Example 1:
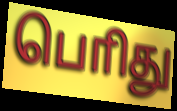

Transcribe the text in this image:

பெரிது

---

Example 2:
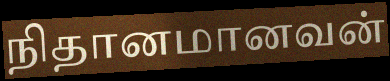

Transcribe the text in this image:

நிதானமானவன்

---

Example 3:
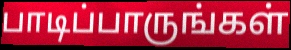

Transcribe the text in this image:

பாடிப்பாருங்கள்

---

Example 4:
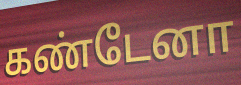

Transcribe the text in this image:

கண்டேனா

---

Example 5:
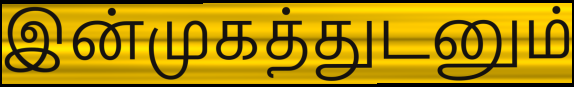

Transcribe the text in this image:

இன்முகத்துடனும்